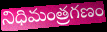
నిధిమంత్రగణం